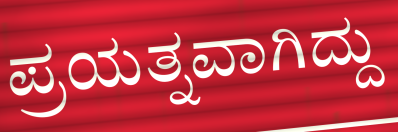
ಪ್ರಯತ್ನವಾಗಿದ್ದು